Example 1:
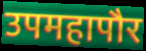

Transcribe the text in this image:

उपमहापौर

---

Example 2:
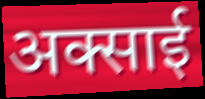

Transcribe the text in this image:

अक्साई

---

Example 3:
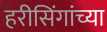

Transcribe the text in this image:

हरीसिंगांच्या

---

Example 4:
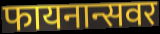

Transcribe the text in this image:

फायनान्सवर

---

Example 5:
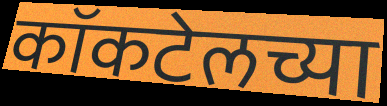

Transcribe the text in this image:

कॉकटेलच्या